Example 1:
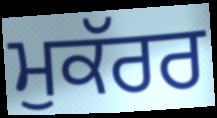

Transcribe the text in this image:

ਮੁਕੱਰਰ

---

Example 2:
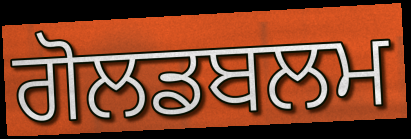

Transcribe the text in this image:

ਗੋਲਡਬਲਮ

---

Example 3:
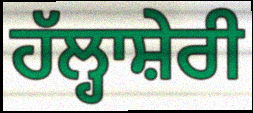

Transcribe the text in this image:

ਹੱਲ੍ਹਾਸ਼ੇਰੀ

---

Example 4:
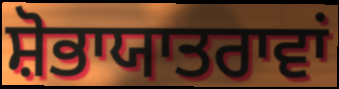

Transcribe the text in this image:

ਸ਼ੋਭਾਯਾਤਰਾਵਾਂ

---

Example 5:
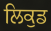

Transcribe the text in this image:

ਲਿਕੁਡ